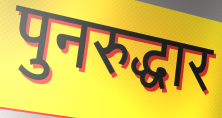
पुनरुद्धार